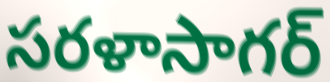
సరళాసాగర్